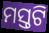
ମସ୍ତଟି